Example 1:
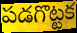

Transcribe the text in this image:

పడగొట్టక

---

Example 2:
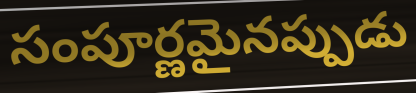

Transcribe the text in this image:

సంపూర్ణమైనప్పుడు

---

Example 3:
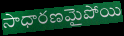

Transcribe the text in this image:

సాధారణమైపోయి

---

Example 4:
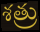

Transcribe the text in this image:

శత్రు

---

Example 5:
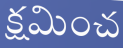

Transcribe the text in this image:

క్షమించ